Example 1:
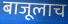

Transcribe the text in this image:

बाजूलाच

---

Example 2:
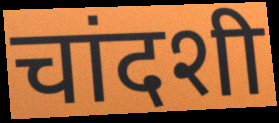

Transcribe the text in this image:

चांदशी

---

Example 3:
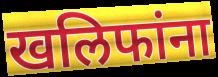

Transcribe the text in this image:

खलिफांना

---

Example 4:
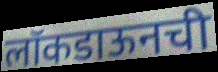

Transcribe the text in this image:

लॉकडाऊनची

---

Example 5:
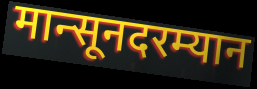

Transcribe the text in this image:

मान्सूनदरम्यान